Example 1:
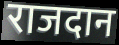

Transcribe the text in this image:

राजदान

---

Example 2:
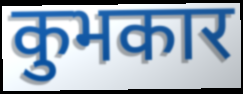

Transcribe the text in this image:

कुभकार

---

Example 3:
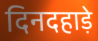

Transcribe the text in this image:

दिनदहाड़े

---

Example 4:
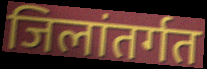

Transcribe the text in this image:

जिलांतर्गत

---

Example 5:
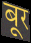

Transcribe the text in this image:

बूर